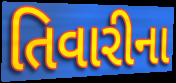
તિવારીના